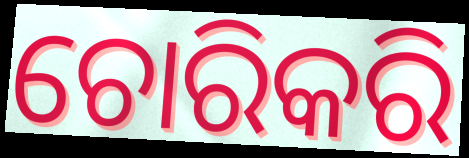
ଚୋରିକରି